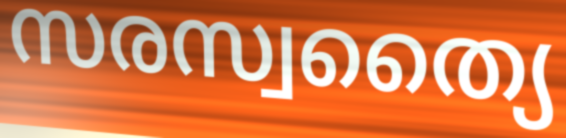
സരസ്വത്യൈ